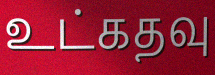
உட்கதவு